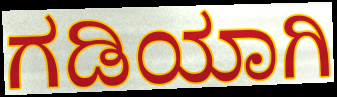
ಗಡಿಯಾಗಿ